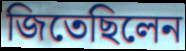
জিতেছিলেন